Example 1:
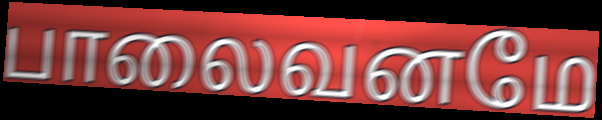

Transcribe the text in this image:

பாலைவனமே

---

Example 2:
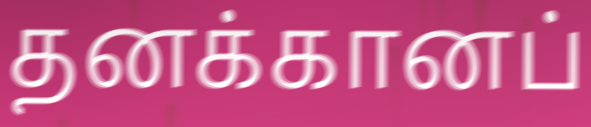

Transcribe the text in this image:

தனக்கானப்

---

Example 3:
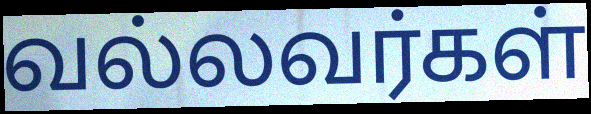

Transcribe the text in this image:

வல்லவர்கள்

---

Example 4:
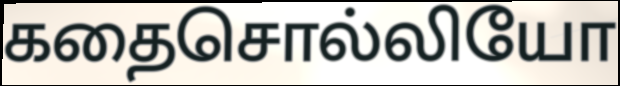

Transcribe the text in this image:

கதைசொல்லியோ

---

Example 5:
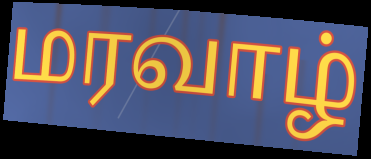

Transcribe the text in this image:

மரவாழ்